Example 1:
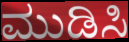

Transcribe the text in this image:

ಮುಡಿಸಿ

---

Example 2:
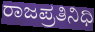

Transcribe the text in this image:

ರಾಜಪ್ರತಿನಿಧಿ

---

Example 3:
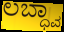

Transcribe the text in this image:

ಲಬ್ಧ್ವಾ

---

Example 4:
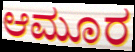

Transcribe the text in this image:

ಆಮೂರ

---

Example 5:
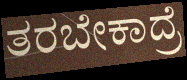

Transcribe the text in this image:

ತರಬೇಕಾದ್ರೆ